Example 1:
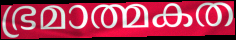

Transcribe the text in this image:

ഭ്രമാത്മകത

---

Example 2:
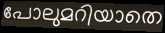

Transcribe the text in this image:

പോലുമറിയാതെ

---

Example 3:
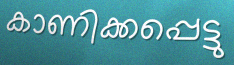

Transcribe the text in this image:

കാണിക്കപ്പെട്ടു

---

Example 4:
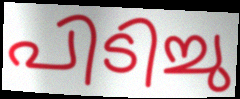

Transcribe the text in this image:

പിടിച്ചു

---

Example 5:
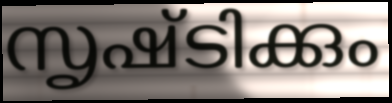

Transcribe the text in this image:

സൃഷ്‌ടിക്കും